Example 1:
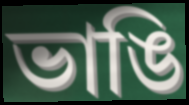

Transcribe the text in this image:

ভাঙি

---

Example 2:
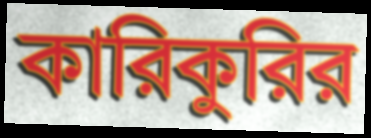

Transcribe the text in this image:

কারিকুরির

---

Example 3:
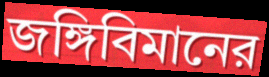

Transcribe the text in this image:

জঙ্গিবিমানের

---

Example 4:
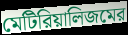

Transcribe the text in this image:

মেটিরিয়ালিজমের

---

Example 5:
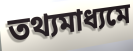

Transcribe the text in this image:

তথ্যমাধ্যমে